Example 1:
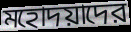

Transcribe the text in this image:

মহোদয়াদের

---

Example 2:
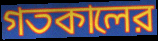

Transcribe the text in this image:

গতকালের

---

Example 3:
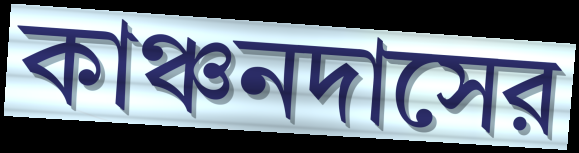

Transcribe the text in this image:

কাঞ্চনদাসের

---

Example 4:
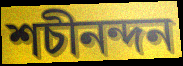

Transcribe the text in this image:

শচীনন্দন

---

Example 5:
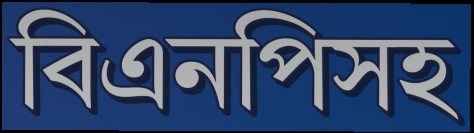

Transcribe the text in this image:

বিএনপিসহ